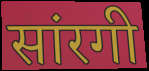
सांरगी